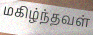
மகிழ்ந்தவள்